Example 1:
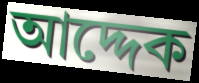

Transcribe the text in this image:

আদ্দেক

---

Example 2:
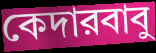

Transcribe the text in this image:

কেদারবাবু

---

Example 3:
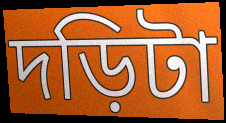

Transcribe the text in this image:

দড়িটা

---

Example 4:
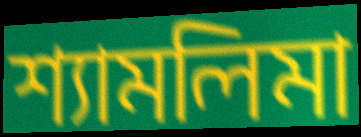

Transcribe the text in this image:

শ্যামলিমা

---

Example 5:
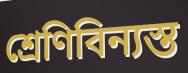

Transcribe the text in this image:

শ্রেণিবিন্যস্ত